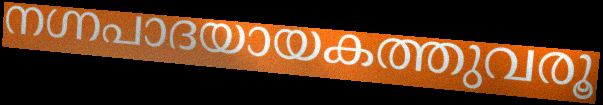
നഗ്നപാദയായകത്തുവരൂ